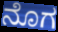
ನೊಗ